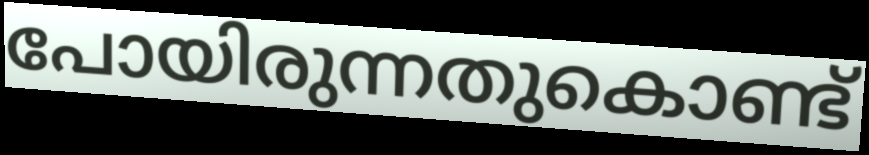
പോയിരുന്നതുകൊണ്ട്